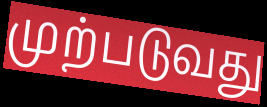
முற்படுவது